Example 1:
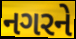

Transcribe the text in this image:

નગરને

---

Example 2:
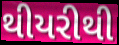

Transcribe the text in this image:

થીયરીથી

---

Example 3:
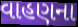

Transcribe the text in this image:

વાહણના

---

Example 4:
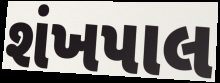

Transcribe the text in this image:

શંખપાલ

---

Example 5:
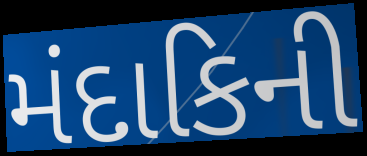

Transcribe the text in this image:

મંદાકિની